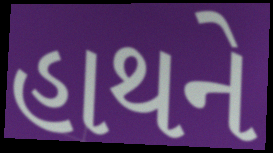
હાથને